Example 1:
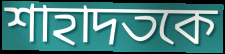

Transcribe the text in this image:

শাহাদতকে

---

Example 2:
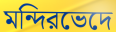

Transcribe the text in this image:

মন্দিরভেদে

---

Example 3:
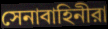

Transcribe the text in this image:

সেনাবাহিনীরা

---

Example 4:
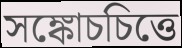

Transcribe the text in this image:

সঙ্কোচচিত্তে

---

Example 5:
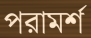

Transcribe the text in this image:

পরামর্শ